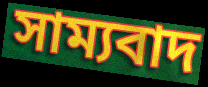
সাম্যবাদ